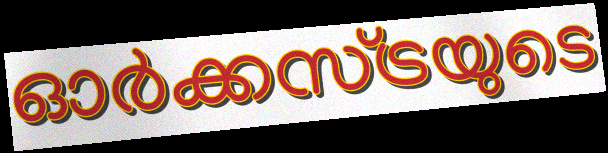
ഓർക്കസ്ട്രയുടെ